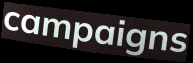
campaigns